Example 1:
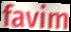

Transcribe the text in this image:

favim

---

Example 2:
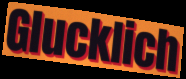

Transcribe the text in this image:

Glucklich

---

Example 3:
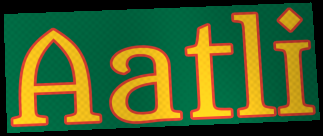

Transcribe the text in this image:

Aatli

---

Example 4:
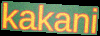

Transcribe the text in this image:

kakani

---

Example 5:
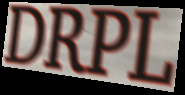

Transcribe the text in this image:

DRPL